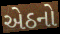
એઠનો